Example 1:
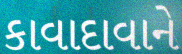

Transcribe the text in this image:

કાવાદાવાને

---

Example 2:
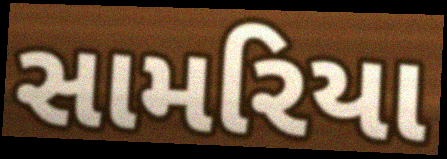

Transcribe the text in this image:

સામરિયા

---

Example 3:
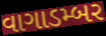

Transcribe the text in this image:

વાગાડમ્બર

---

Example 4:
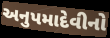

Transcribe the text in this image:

અનુપમાદેવીનો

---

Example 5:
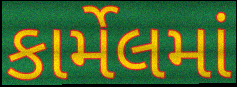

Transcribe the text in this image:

કાર્મેલમાં